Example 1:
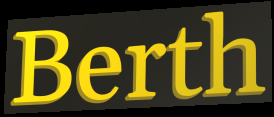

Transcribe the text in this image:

Berth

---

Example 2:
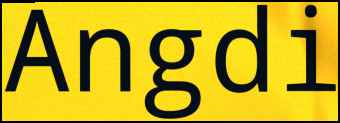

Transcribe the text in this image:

Angdi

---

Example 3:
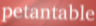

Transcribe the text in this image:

petantable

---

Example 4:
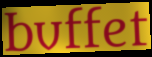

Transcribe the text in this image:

buffet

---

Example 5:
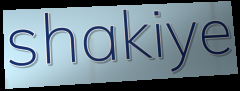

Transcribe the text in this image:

shakiye